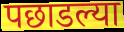
पछाडल्या